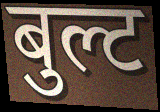
बुल्ट